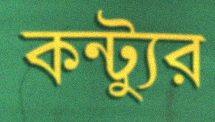
কন্ট্যুর